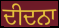
ਦੀਦਨਾ